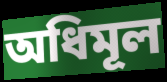
অধিমূল